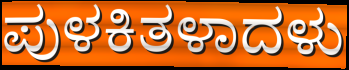
ಪುಳಕಿತಳಾದಳು